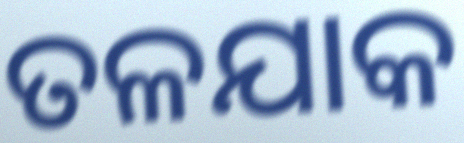
ତଳଯାକ